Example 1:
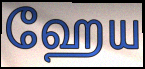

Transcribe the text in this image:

ஹேய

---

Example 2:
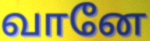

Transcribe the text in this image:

வானே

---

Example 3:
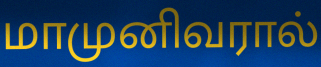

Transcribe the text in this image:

மாமுனிவரால்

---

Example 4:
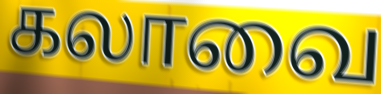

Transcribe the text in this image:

கலாவை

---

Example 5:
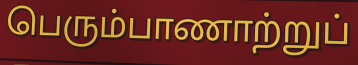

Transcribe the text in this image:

பெரும்பாணாற்றுப்